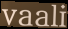
vaali